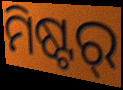
ମିଷ୍ଟର୍